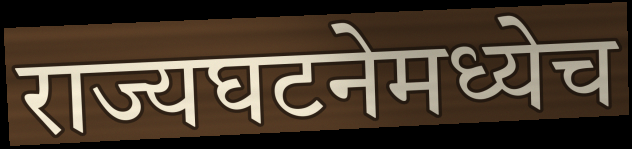
राज्यघटनेमध्येच